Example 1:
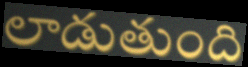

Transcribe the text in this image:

లాడుతుంది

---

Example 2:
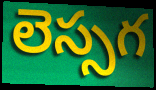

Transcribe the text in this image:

లెస్సగ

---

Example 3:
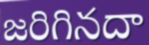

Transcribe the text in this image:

జరిగినదా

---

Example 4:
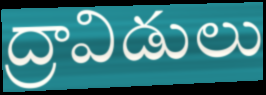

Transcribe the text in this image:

ద్రావిడులు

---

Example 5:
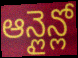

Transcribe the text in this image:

ఆన్లైన్లో